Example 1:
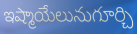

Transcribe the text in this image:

ఇష్మాయేలునుగూర్చి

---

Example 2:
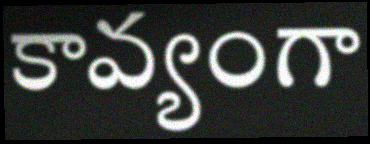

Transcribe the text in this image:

కావ్యంగా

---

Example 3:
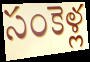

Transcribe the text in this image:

సంకెళ్ల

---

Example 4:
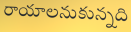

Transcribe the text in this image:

రాయాలనుకున్నది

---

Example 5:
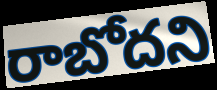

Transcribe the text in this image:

రాబోదని